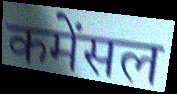
कमेंसल